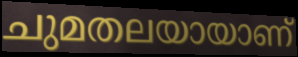
ചുമതലയായാണ്